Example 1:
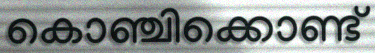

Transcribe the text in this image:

കൊഞ്ചിക്കൊണ്ട്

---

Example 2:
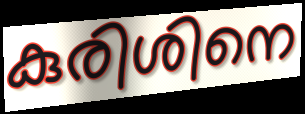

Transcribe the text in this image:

കുരിശിനെ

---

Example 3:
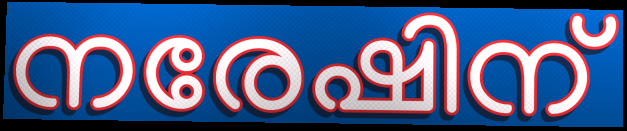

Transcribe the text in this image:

നരേഷിന്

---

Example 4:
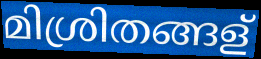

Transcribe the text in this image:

മിശ്രിതങ്ങള്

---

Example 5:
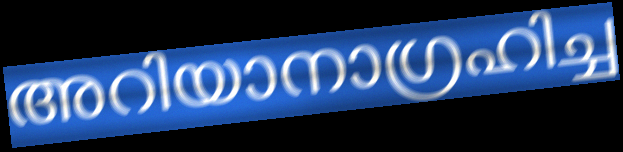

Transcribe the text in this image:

അറിയാനാഗ്രഹിച്ച